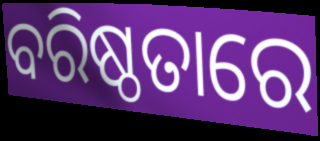
ବରିଷ୍ଠତାରେ